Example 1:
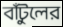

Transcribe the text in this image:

বাঁটুলের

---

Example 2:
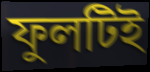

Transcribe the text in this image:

ফুলটিই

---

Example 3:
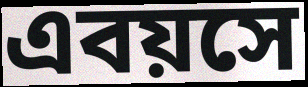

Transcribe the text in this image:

এবয়সে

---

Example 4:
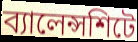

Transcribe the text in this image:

ব্যালেন্সশিটে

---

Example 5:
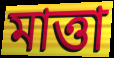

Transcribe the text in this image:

মাত্তা